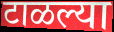
टाळल्या